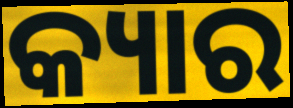
କ୍ୟାର